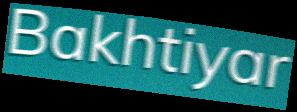
Bakhtiyar